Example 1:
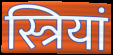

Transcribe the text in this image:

स्त्रियां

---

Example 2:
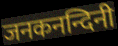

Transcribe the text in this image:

जनकनन्दिनी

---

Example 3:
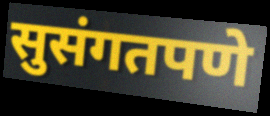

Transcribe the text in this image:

सुसंगतपणे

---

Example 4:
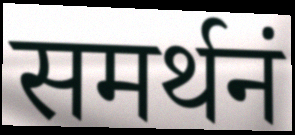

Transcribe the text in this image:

समर्थनं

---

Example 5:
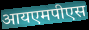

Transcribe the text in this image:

आयएमपीएस